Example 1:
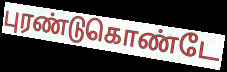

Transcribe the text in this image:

புரண்டுகொண்டே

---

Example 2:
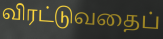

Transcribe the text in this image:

விரட்டுவதைப்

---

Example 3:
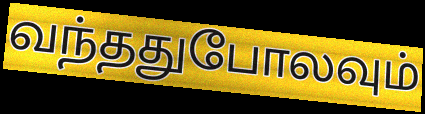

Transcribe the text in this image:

வந்ததுபோலவும்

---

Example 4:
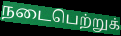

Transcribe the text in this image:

நடைபெற்றுக்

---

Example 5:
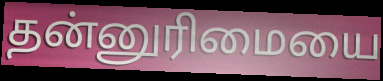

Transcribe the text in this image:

தன்னுரிமையை